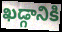
ఖడ్గానికి